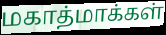
மகாத்மாக்கள்